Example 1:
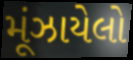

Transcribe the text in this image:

મૂંઝાયેલો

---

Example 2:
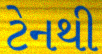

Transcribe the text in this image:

ટેનથી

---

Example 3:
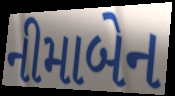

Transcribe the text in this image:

નીમાબેન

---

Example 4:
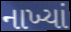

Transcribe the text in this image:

નાખ્યાં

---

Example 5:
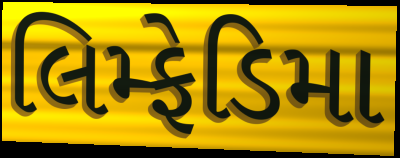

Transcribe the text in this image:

લિમ્ફેડિમા